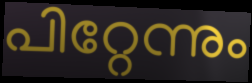
പിറ്റേന്നും